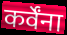
कर्वेंना